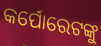
କର୍ପୋରେଟଙ୍କୁ